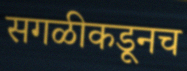
सगळीकडूनच